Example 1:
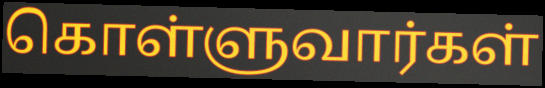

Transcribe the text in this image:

கொள்ளுவார்கள்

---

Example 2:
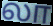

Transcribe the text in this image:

லா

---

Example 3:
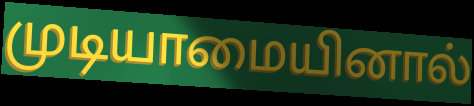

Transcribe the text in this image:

முடியாமையினால்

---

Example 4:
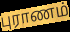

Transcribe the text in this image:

புராணம்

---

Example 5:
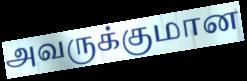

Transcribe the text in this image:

அவருக்குமான